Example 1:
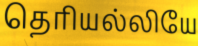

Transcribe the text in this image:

தெரியல்லியே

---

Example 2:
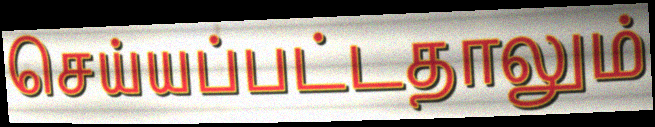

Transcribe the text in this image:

செய்யப்பட்டதாலும்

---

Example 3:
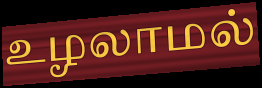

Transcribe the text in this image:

உழலாமல்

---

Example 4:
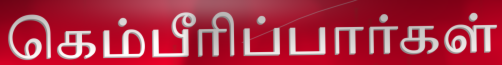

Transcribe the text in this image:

கெம்பீரிப்பார்கள்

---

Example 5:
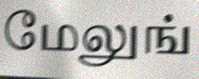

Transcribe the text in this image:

மேலுங்